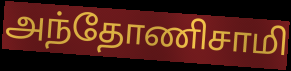
அந்தோணிசாமி